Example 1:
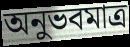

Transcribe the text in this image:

অনুভবমাত্র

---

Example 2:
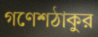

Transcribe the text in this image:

গণেশঠাকুর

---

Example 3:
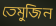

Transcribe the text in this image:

তেমুজিন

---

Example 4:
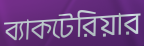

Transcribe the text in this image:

ব্যাকটেরিয়ার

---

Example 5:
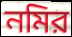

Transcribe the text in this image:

নমির